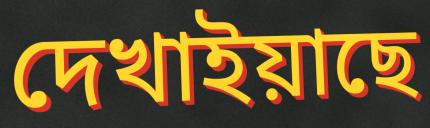
দেখাইয়াছে